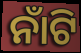
ନାଁଟି